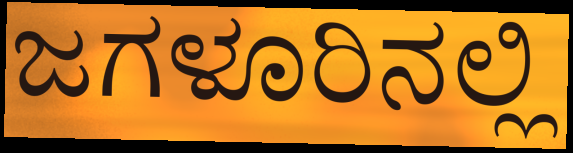
ಜಗಳೂರಿನಲ್ಲಿ